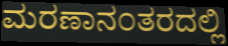
ಮರಣಾನಂತರದಲ್ಲಿ